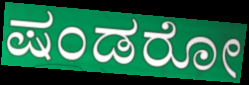
ಷಂಡರೋ